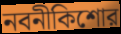
নবনীকিশোর